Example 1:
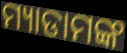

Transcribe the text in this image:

ମ୍ୟାଡାମଙ୍କ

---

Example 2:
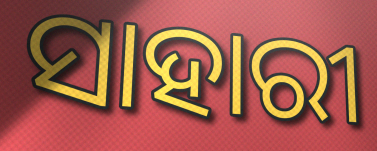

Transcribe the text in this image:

ସାହାରୀ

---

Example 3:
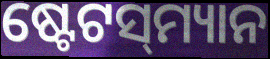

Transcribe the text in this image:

ଷ୍ଟେଟସ୍‌ମ୍ୟାନ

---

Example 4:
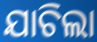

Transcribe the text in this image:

ଯାଚିଲା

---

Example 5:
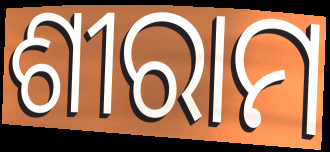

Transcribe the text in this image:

ଶୀରାମ